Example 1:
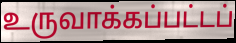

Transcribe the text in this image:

உருவாக்கப்பட்டப்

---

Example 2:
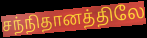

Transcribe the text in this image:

சந்நிதானத்திலே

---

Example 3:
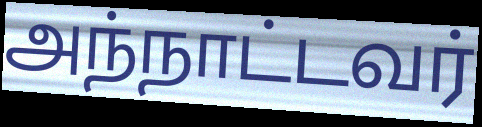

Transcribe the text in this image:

அந்நாட்டவர்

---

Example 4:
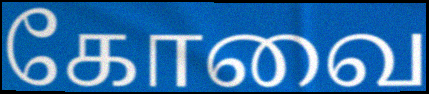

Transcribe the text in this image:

கோவை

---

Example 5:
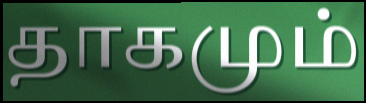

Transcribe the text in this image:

தாகமும்